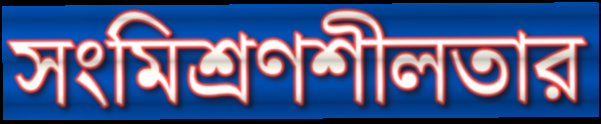
সংমিশ্রণশীলতার